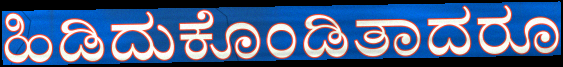
ಹಿಡಿದುಕೊಂಡಿತಾದರೂ